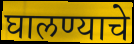
घालण्याचे